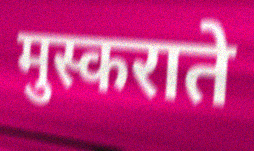
मुस्कराते